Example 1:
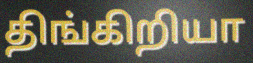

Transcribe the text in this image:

திங்கிறியா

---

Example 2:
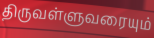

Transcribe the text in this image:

திருவள்ளுவரையும்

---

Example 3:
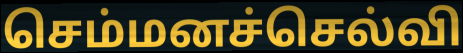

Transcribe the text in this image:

செம்மனச்செல்வி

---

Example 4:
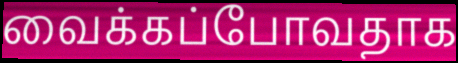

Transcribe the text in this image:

வைக்கப்போவதாக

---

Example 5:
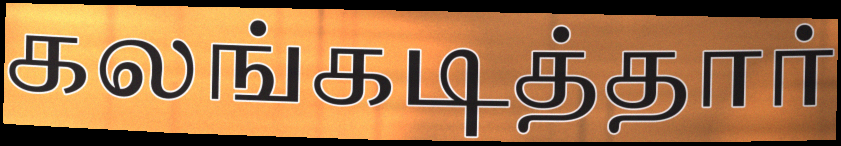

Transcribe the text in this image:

கலங்கடித்தார்